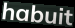
habuit